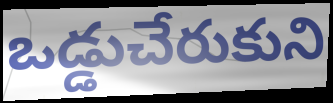
ఒడ్డుచేరుకుని